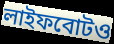
লাইফবোটও